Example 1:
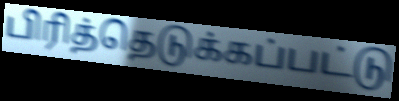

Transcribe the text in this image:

பிரித்தெடுக்கப்பட்டு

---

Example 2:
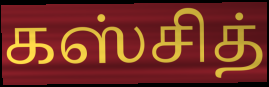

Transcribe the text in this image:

கஸ்சித்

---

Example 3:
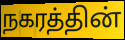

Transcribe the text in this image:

நகரத்தின்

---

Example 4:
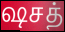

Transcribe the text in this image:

ஷசத்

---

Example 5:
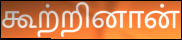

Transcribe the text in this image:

கூற்றினான்